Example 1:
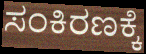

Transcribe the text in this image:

ಸಂಕಿರಣಕ್ಕೆ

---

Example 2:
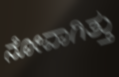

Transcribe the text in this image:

ನೋವಾಗಿತ್ತು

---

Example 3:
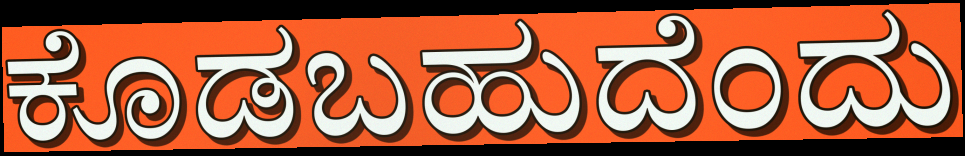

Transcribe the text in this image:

ಕೊಡಬಹುದೆಂದು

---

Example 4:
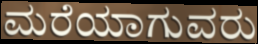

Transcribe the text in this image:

ಮರೆಯಾಗುವರು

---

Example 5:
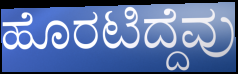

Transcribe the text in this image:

ಹೊರಟಿದ್ದೆವು